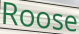
Roose